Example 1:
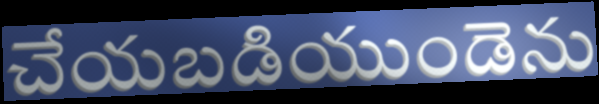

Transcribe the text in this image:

చేయబడియుండెను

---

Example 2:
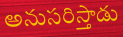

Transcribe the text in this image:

అనుసరిస్తాడు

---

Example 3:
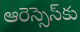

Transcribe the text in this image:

ఆరెస్సెస్‌కు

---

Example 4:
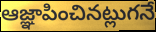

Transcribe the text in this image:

ఆజ్ఞాపించినట్లుగనే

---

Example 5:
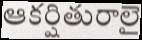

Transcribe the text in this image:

ఆకర్షితురాలై